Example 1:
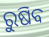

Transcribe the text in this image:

ରୁଷିବ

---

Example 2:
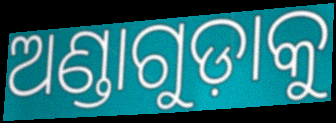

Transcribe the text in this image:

ଅଣ୍ଡାଗୁଡ଼ାକୁ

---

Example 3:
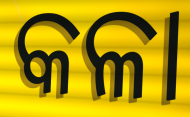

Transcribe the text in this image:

କଳା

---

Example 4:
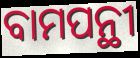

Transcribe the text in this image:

ବାମପନ୍ଥୀ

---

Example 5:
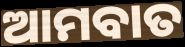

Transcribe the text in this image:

ଆମବାତ